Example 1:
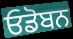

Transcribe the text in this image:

ਓਡੋਬਨ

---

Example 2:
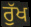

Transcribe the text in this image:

ਰੁੱਖ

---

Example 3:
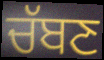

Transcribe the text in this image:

ਚੱਬਣ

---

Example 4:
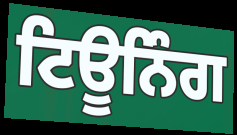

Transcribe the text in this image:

ਟਿਊਨਿੰਗ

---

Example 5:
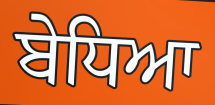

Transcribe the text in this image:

ਬੇਧਿਆ